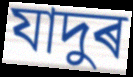
যাদুৰ